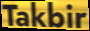
Takbir